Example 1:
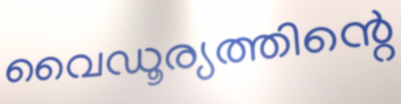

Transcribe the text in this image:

വൈഡൂര്യത്തിന്റെ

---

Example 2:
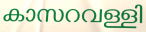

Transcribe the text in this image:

കാസറവള്ളി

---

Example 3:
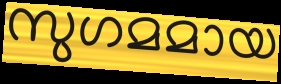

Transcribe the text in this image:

സുഗമമായ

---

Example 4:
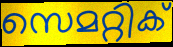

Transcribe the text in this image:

സെമറ്റിക്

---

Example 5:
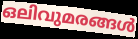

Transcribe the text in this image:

ഒലിവുമരങ്ങൾ